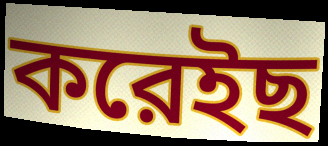
করেইছ